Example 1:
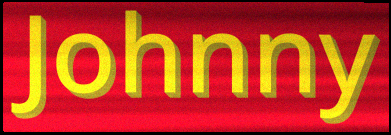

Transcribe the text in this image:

Johnny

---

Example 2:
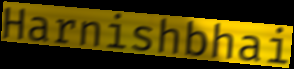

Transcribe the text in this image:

Harnishbhai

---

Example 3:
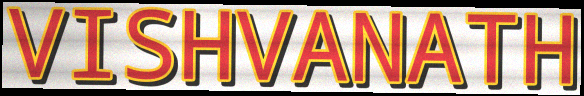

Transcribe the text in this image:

VISHVANATH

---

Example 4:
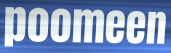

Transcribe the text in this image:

poomeen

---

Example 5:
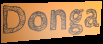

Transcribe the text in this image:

Donga